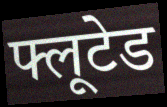
फ्लूटेड